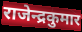
राजेन्द्रकुमार